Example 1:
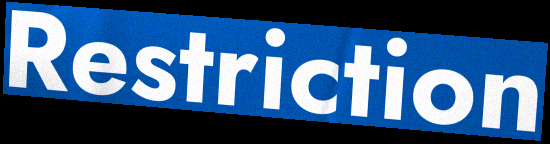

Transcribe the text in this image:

Restriction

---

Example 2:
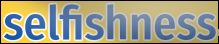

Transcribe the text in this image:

selfishness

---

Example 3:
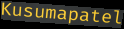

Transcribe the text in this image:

Kusumapatel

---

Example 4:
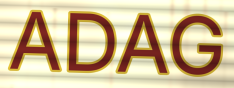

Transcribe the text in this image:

ADAG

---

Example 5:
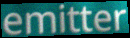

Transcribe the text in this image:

emitter